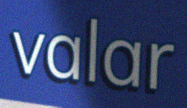
valar